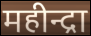
महीन्द्रा